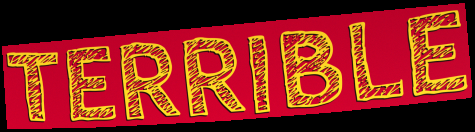
TERRIBLE